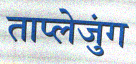
ताप्लेजुंग